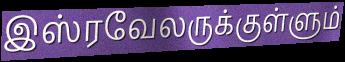
இஸ்ரவேலருக்குள்ளும்